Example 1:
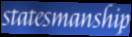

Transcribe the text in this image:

statesmanship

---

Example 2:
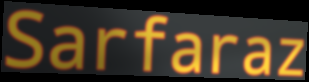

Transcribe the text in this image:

Sarfaraz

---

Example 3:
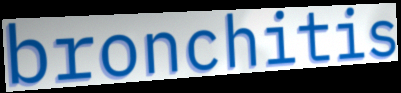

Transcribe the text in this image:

bronchitis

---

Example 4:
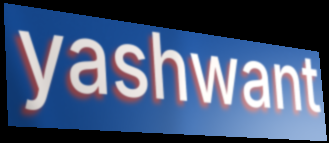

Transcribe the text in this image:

yashwant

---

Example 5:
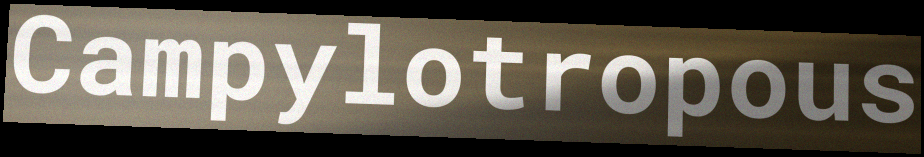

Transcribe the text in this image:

Campylotropous